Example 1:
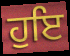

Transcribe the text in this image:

ਹੁਇ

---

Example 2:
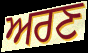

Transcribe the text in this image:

ਅਰਣ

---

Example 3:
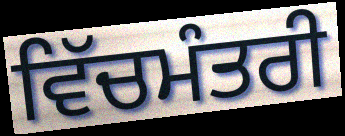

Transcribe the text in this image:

ਵਿੱਚਮੰਤਰੀ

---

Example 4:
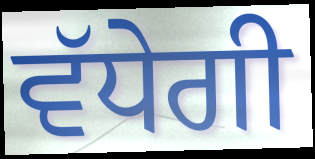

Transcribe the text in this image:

ਵੱਧੇਗੀ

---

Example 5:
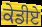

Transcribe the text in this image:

ਕੇਡੀਏ